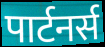
पार्टनर्स